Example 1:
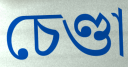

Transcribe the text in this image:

চেণ্ডা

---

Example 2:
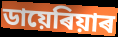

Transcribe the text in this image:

ডায়েৰিয়াৰ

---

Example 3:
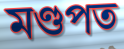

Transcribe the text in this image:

মণ্ডপত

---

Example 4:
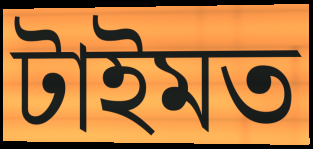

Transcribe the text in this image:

টাইমত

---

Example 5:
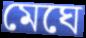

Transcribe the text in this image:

মেঘে